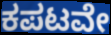
ಕಪಟವೇ